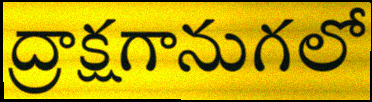
ద్రాక్షగానుగలో